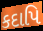
કદાપિ